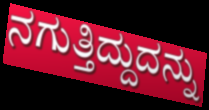
ನಗುತ್ತಿದ್ದುದನ್ನು